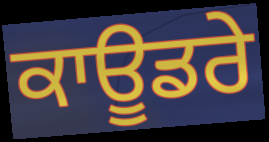
ਕਾਊਡਰੇ